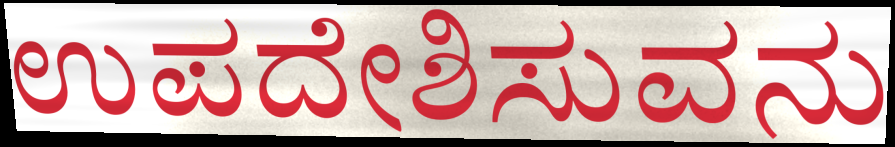
ಉಪದೇಶಿಸುವನು